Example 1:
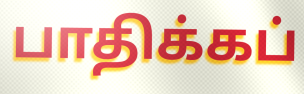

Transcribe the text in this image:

பாதிக்கப்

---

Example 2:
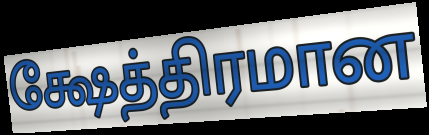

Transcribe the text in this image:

க்ஷேத்திரமான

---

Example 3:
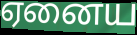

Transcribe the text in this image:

ஏனைய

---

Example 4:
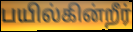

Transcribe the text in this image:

பயில்கின்றீர்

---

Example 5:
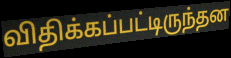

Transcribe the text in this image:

விதிக்கப்பட்டிருந்தன